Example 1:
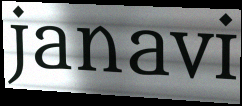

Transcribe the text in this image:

janavi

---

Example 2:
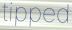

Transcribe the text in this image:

tipped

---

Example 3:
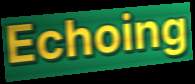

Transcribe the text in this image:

Echoing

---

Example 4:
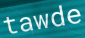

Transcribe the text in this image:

tawde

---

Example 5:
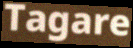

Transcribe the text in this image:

Tagare